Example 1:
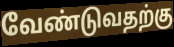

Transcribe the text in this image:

வேண்டுவதற்கு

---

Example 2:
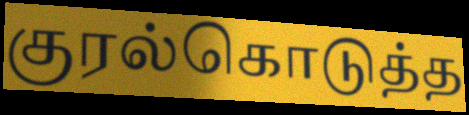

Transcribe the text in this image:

குரல்கொடுத்த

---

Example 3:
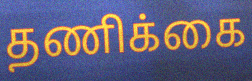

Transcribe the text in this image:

தணிக்கை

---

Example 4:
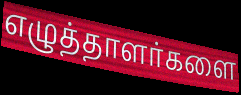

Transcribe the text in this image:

எழுத்தாளர்களை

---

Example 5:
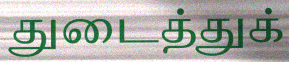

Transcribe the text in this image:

துடைத்துக்